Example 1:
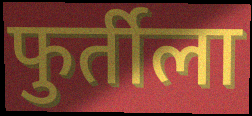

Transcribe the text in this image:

फुर्तीला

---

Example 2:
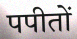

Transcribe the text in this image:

पपीतों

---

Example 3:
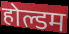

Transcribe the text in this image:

होल्डम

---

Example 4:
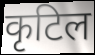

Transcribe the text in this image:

कृटिल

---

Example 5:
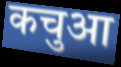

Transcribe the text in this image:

कचुआ